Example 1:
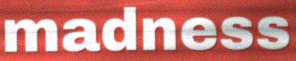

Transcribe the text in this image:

madness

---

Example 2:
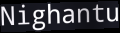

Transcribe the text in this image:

Nighantu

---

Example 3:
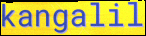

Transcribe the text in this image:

kangalil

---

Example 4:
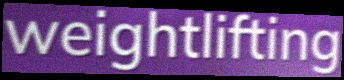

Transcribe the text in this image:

weightlifting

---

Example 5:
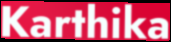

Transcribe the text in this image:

Karthika